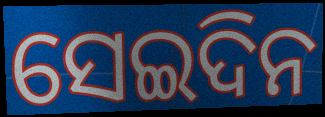
ସେଇଦିନ